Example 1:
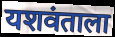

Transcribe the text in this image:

यशवंताला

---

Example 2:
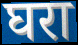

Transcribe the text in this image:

घरा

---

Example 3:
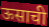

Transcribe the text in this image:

ऊसाची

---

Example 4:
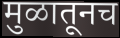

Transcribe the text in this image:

मुळातूनच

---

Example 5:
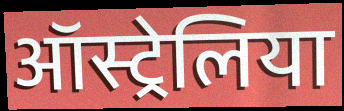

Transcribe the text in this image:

ऑस्ट्रेलिया